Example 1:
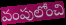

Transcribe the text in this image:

వంపులోంచి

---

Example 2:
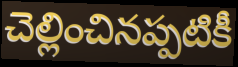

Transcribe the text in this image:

చెల్లించినప్పటికీ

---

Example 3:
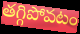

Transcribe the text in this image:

తగ్గిపోవటం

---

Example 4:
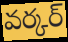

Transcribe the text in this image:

వర్కర్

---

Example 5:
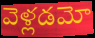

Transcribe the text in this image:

వెళ్లడమో